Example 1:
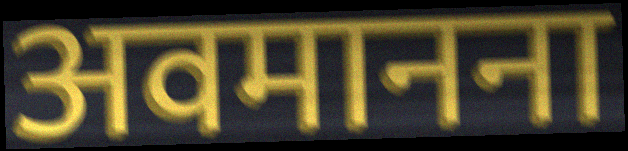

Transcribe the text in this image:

अवमानना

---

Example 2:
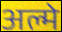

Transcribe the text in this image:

अल्मे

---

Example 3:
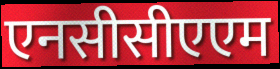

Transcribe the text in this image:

एनसीसीएएम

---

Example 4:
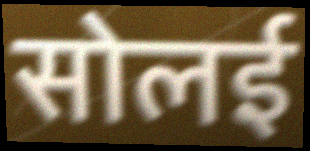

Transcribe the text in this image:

सोलई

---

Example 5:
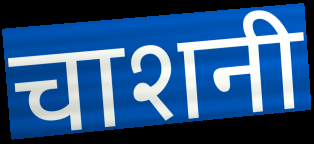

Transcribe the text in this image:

चाशनी